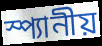
স্প্যানীয়